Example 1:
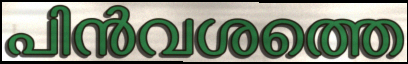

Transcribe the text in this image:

പിൻവശത്തെ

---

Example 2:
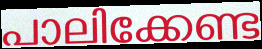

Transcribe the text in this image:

പാലിക്കേണ്ട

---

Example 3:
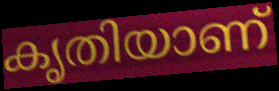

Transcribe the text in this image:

കൃതിയാണ്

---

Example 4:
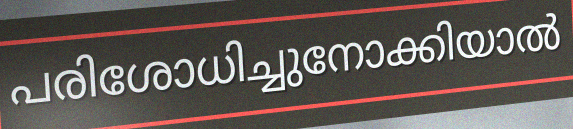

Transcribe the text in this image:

പരിശോധിച്ചുനോക്കിയാൽ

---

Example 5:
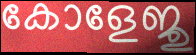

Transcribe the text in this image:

കോളേജു